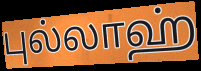
புல்லாஹ்